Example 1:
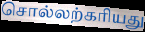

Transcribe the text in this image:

சொல்லற்கரியது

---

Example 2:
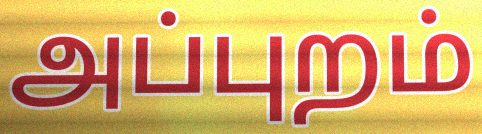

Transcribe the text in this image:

அப்புறம்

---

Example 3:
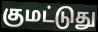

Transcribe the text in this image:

குமட்டுது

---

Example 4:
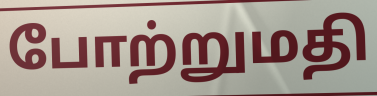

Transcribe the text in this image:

போற்றுமதி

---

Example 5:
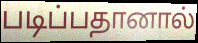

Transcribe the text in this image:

படிப்பதானால்